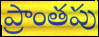
ప్రాంతపు